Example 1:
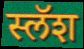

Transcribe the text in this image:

स्लॅश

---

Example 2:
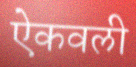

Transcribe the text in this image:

ऐकवली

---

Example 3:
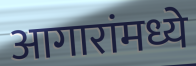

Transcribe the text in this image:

आगारांमध्ये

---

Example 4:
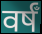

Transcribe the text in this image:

वर्षँ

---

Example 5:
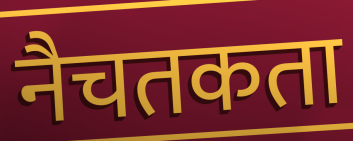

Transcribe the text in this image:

नैचतकता